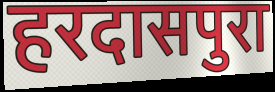
हरदासपुरा